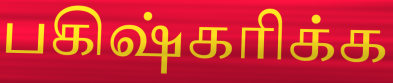
பகிஷ்கரிக்க